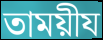
তাময়ীয